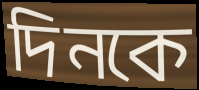
দিনকে